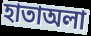
হাতাঅলা